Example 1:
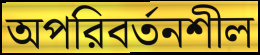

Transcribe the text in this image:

অপরিবর্তনশীল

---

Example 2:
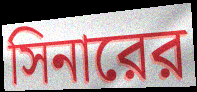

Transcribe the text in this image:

সিনারের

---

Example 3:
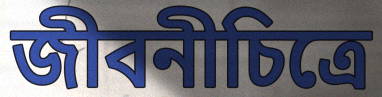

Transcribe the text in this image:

জীবনীচিত্রে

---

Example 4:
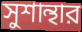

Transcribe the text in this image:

সুশান্থার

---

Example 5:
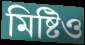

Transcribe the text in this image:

মিষ্টিও